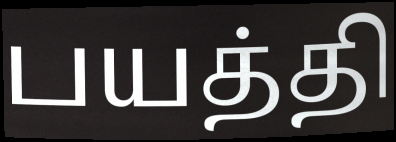
பயத்தி